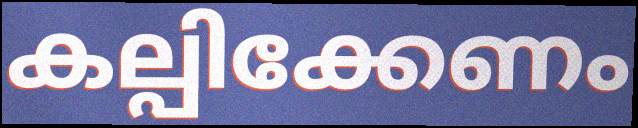
കല്പിക്കേണം